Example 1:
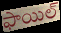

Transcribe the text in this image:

ఫాయిల్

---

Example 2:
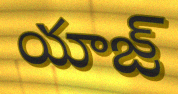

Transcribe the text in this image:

యాజ్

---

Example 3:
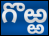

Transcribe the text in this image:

గొఱ్ఱ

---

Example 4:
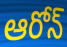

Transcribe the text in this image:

ఆరోన్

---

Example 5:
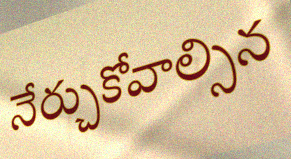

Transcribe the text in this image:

నేర్చుకోవాల్సిన